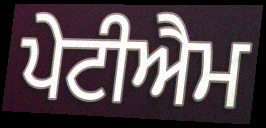
ਪੇਟੀਐਮ